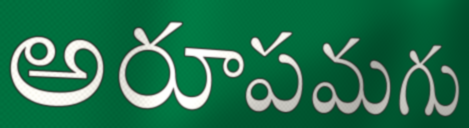
అరూపమగు